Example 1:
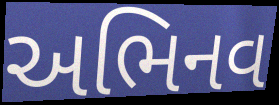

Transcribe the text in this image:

અભિનવ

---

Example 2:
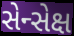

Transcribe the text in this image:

સેન્સેક્ષ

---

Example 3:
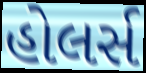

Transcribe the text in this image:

હોલર્સ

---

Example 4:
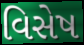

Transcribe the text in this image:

વિસેષ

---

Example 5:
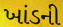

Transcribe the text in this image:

ખાંડની